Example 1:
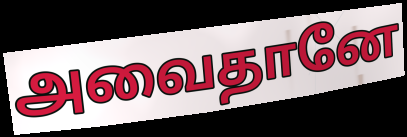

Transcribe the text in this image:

அவைதானே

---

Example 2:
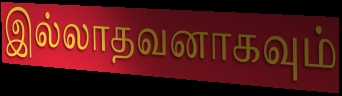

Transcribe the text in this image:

இல்லாதவனாகவும்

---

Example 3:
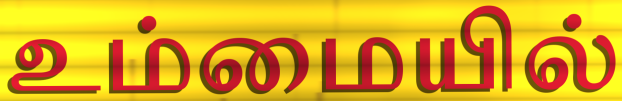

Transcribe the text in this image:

உம்மையில்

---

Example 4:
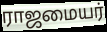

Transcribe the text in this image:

ராஜமையர்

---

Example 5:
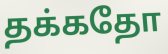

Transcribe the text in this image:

தக்கதோ